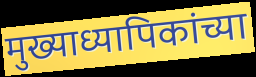
मुख्याध्यापिकांच्या